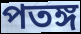
পতঙ্গ